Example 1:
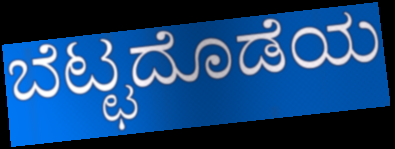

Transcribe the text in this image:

ಬೆಟ್ಟದೊಡೆಯ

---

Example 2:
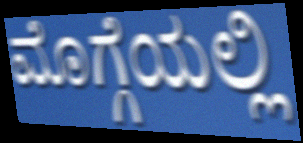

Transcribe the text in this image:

ಮೊಗ್ಗೆಯಲ್ಲಿ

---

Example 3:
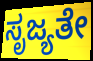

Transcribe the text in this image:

ಸೃಜ್ಯತೇ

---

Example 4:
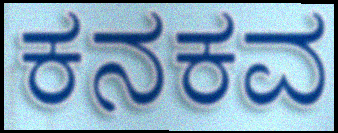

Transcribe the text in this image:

ಕನಕವ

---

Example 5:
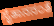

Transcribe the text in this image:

ಸೈತಾನನಂತೆ